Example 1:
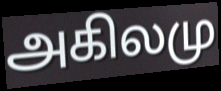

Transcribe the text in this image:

அகிலமு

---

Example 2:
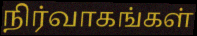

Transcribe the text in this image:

நிர்வாகங்கள்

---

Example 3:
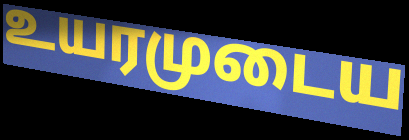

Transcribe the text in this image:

உயரமுடைய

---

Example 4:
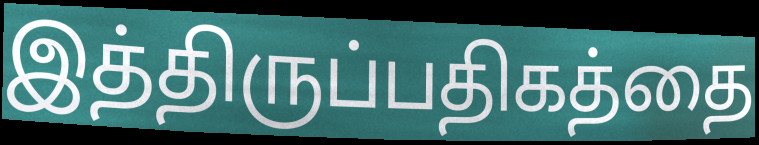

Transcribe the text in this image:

இத்திருப்பதிகத்தை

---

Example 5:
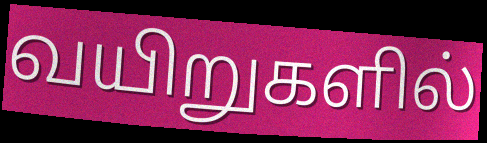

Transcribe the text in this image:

வயிறுகளில்